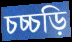
চচ্চড়ি